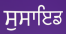
ਸੁਸਾਇਡ